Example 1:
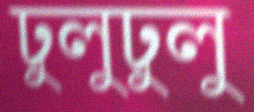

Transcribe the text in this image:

ঢুলুঢুলু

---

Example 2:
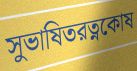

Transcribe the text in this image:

সুভাষিতরত্নকোষ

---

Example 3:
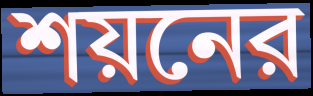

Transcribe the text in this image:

শয়নের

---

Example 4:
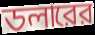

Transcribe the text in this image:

ডলারের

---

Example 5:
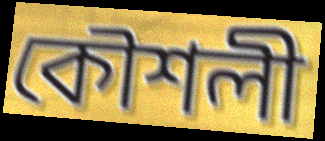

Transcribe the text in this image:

কৌশলী